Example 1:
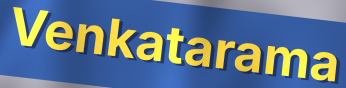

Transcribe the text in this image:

Venkatarama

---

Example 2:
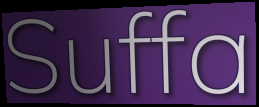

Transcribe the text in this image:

Suffa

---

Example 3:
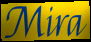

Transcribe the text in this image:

Mira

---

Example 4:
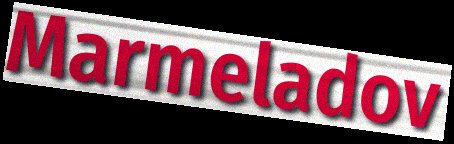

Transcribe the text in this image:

Marmeladov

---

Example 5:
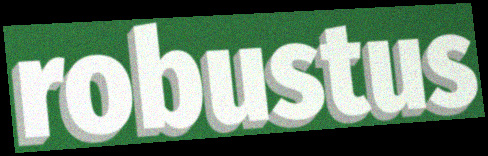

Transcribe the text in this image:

robustus